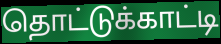
தொட்டுக்காட்டி